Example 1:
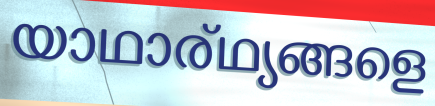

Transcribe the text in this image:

യാഥാര്ഥ്യങ്ങളെ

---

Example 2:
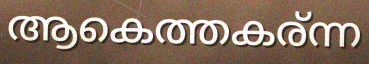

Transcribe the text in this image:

ആകെത്തകര്ന്ന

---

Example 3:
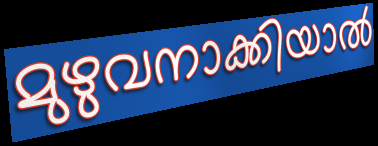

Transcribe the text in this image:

മുഴുവനാക്കിയാൽ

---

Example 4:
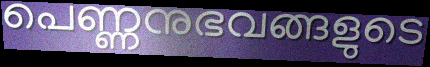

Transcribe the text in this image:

പെണ്ണനുഭവങ്ങളുടെ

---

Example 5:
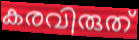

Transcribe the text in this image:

കരവിരുത്